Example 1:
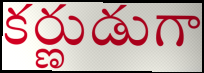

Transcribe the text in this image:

కర్ణుడుగా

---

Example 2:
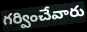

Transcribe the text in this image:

గర్వించేవారు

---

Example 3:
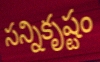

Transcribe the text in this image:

సన్నికృష్టం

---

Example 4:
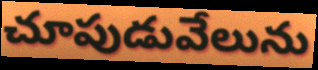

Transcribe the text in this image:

చూపుడువేలును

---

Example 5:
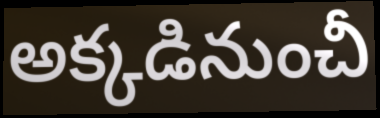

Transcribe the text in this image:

అక్కడినుంచీ